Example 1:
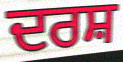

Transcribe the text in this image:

ਦਰਸ਼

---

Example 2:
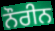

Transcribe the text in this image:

ਨੌਰੀਨ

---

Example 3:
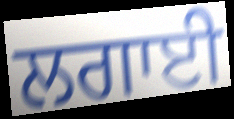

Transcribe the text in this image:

ਲਗਾਈ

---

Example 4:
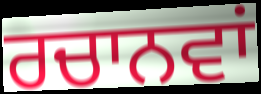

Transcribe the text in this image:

ਰਚਾਨਵਾਂ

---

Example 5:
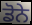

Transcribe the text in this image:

ਡੋਨੇ